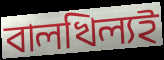
বালখিল্যই